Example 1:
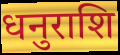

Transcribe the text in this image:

धनुराशि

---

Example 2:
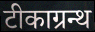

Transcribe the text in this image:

टीकाग्रन्थ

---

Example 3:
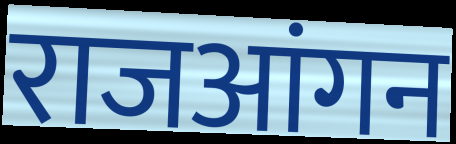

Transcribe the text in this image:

राजआंगन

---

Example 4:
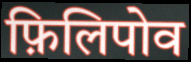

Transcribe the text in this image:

फ़िलिपोव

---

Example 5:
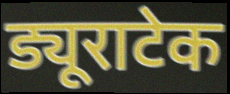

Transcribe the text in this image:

ड्यूराटेक